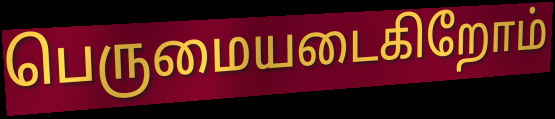
பெருமையடைகிறோம்